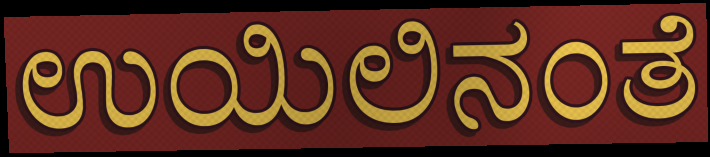
ಉಯಿಲಿನಂತೆ